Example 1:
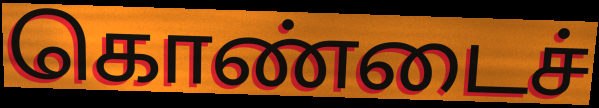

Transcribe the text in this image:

கொண்டைச்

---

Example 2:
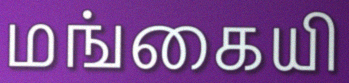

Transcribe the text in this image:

மங்கையி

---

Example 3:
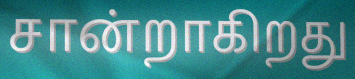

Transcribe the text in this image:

சான்றாகிறது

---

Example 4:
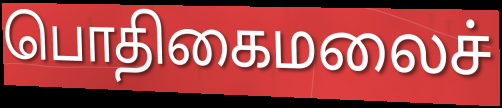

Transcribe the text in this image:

பொதிகைமலைச்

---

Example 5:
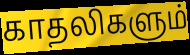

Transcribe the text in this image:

காதலிகளும்